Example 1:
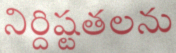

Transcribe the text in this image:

నిర్దిష్టతలను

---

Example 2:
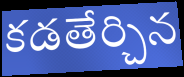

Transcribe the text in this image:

కడతేర్చిన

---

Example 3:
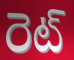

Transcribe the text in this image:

రెట్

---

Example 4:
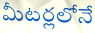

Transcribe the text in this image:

మీటర్లలోనే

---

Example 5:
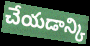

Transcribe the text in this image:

చేయడాన్కి